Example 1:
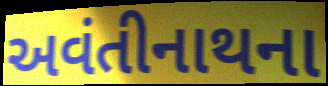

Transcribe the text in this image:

અવંતીનાથના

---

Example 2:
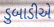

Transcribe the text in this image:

ડુબાડીએ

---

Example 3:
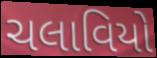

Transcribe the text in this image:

ચલાવિયો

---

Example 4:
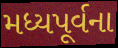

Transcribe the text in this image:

મધ્યપૂર્વના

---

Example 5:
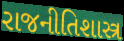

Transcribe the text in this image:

રાજનીતિશાસ્ત્ર